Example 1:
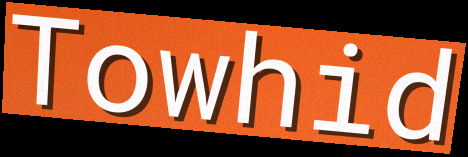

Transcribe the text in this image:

Towhid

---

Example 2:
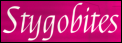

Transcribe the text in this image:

Stygobites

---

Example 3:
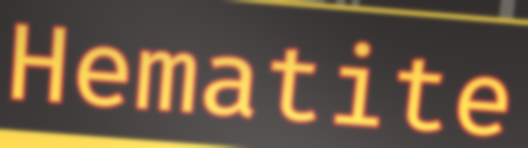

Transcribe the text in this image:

Hematite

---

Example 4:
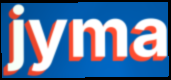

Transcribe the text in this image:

jyma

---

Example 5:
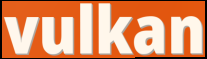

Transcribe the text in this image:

vulkan